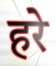
हरे